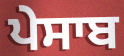
ਪੇਸਾਬ